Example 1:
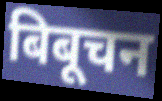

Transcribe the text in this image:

बिबूचन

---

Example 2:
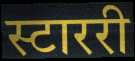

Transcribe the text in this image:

स्टाररी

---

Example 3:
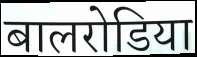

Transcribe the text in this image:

बालरोडिया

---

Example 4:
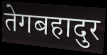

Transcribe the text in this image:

तेगबहादुर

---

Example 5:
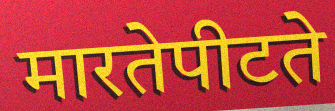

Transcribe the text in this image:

मारतेपीटते